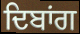
ਦਿਬਾਂਗ